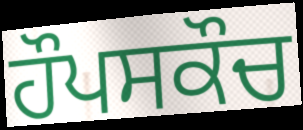
ਹੌਪਸਕੌਚ